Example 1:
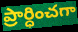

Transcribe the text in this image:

ప్రార్ధించగా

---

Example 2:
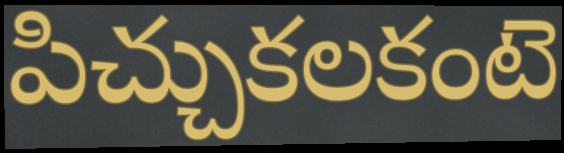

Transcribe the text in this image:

పిచ్చుకలకంటె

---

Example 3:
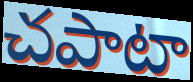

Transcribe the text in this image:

చపాటా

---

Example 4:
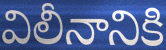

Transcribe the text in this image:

విలీనానికి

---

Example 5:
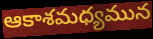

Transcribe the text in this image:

ఆకాశమధ్యమున